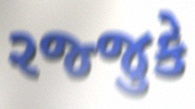
રજ્જુકે